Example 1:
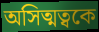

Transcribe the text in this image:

অসিত্মত্বকে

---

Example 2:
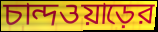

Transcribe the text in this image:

চান্দওয়াড়ের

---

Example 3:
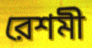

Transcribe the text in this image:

রেশমী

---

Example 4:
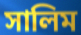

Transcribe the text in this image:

সালিম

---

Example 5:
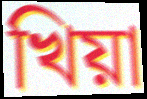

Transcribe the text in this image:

খিয়া